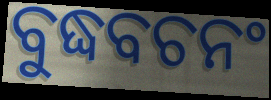
ବୁଦ୍ଧବଚନଂ